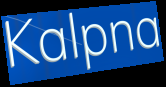
Kalpna